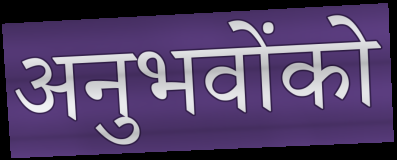
अनुभवोंको